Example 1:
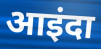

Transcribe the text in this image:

आइंदा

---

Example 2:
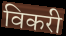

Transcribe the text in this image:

विकरी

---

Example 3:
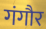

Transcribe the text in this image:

गंगौर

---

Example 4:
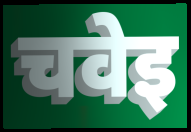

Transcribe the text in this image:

चवेइ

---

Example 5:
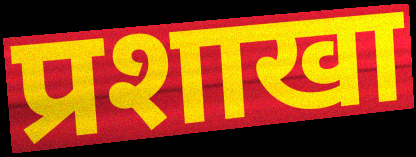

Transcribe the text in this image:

प्रशाखा